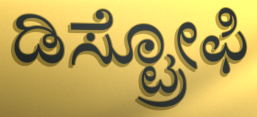
ಡಿಸ್ಟ್ರೋಫಿ